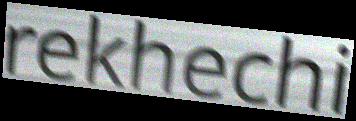
rekhechi